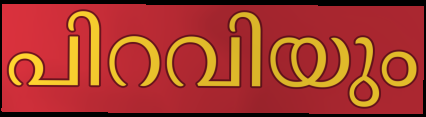
പിറവിയും